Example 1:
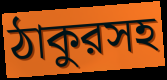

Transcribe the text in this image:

ঠাকুরসহ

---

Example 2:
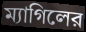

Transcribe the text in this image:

ম্যাগিলের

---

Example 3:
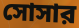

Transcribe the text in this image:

সোসার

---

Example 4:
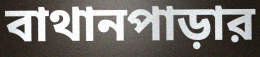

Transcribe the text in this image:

বাথানপাড়ার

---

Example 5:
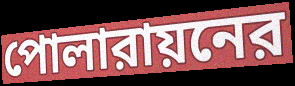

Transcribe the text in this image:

পোলারায়নের